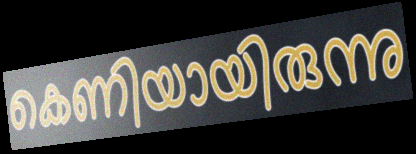
കെണിയായിരുന്നു